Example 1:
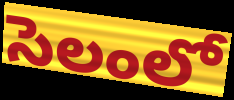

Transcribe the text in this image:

సెలంలో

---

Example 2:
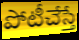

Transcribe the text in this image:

పోటీచేస్తే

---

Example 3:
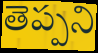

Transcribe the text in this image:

తెప్పని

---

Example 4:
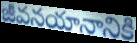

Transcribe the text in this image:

జీవనయానానికి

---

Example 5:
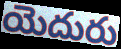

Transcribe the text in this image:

యెదురు